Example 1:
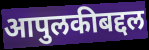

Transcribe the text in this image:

आपुलकीबद्दल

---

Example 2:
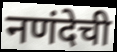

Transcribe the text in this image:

नणंदेची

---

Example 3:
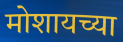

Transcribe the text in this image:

मोशायच्या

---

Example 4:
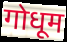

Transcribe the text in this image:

गोधूम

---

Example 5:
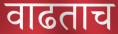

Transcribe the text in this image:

वाढताच